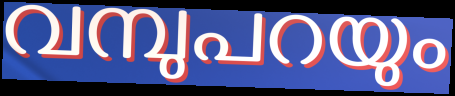
വമ്പുപറയും